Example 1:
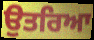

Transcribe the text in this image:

ਉਤਰਿਆ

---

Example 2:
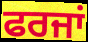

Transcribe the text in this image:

ਫਰਜਾਂ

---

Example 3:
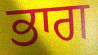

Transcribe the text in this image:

ਭਾਗ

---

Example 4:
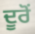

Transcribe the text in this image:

ਦੂਰੋਂ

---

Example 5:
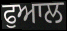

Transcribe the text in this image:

ਫੁਆਲ